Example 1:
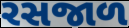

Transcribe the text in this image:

રસજાળ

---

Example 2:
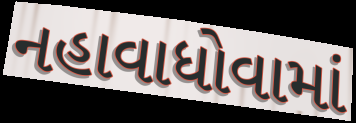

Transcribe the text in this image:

નહાવાધોવામાં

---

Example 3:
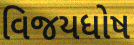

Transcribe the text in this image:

વિજયધોષ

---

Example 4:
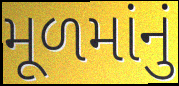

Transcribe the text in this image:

મૂળમાંનું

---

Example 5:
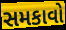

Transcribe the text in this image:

સમકાવો